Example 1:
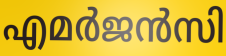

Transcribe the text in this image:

എമർജൻസി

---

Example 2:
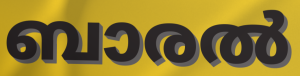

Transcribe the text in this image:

ബാരൽ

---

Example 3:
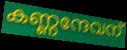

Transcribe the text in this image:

കണ്ണന്ദേവന്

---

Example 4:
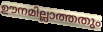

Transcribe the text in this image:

ഊനമില്ലാത്തതും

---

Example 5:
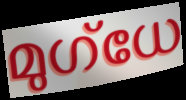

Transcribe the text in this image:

മുഗ്ധേ